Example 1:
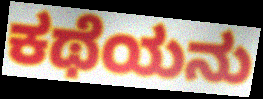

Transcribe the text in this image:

ಕಥೆಯನು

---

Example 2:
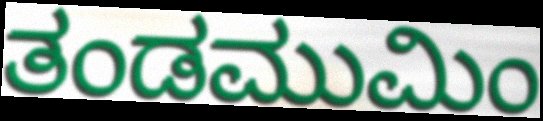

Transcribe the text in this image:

ತಂಡಮುಮಿಂ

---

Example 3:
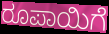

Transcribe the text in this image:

ರೂಪಾಯಿಗೆ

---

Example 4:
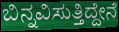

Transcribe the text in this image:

ಬಿನ್ನವಿಸುತ್ತಿದ್ದೇನೆ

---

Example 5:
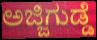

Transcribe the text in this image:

ಅಜ್ಜಿಗುಡ್ಡೆ